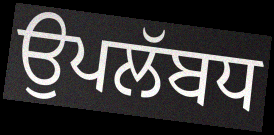
ਉਪਲੱਬਧ